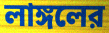
লাঙ্গলের